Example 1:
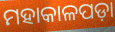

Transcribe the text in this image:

ମହାକାଳପଡ଼ା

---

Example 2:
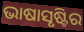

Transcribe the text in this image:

ଭାଷାସୃଷ୍ଟିର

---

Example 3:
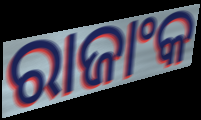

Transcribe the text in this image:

ରାଜାଂକ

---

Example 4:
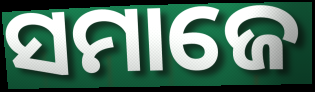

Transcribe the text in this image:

ସମାଜେ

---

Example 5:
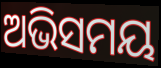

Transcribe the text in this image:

ଅଭିସମୟ